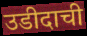
उडीदाची